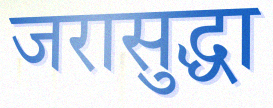
जरासुद्धा